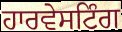
ਹਾਰਵੇਸਟਿੰਗ